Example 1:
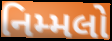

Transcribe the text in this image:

નિમ્મલો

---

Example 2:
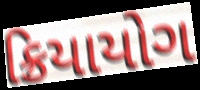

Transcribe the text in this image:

ક્રિયાયોગ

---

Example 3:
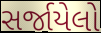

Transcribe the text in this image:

સર્જાયેલો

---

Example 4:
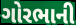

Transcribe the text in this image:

ગોરભાની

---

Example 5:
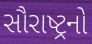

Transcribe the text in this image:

સૌરાષ્ટ્રનો